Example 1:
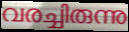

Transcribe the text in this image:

വരച്ചിരുന്നു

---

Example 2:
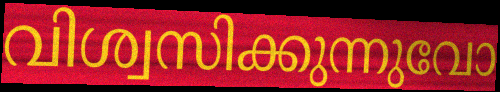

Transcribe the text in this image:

വിശ്വസിക്കുന്നുവോ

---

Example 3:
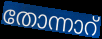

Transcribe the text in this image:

തോന്നാറ്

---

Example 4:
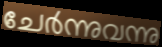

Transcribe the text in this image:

ചേർന്നുവന്നു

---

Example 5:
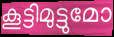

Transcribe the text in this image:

കൂട്ടിമുട്ടുമോ